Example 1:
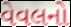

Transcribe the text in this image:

વેવલનો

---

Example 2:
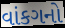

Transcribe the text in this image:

વાંકગનો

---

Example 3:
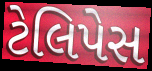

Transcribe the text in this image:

ટેલિપેસ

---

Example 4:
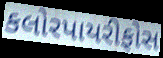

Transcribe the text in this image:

કલોરપાયરીફોસ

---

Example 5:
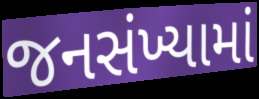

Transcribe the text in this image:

જનસંખ્યામાં